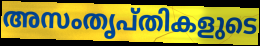
അസംതൃപ്തികളുടെ